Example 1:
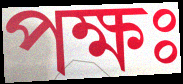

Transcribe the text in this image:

পক্ষঃ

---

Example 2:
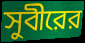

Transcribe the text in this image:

সুবীরের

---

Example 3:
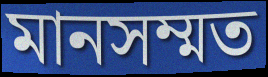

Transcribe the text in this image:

মানসম্মত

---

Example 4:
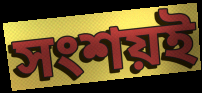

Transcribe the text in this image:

সংশয়ই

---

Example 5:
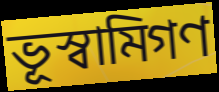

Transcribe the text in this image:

ভূস্বামিগণ